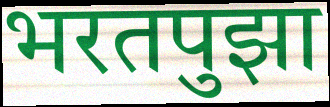
भरतपुझा